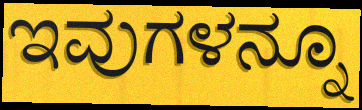
ಇವುಗಳನ್ನೂ